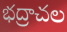
భద్రాచల